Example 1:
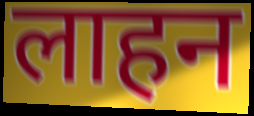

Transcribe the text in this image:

लाहन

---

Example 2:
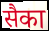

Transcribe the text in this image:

सैका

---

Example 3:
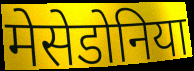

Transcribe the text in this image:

मेसेडोनिया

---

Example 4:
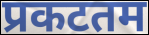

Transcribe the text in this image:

प्रकटतम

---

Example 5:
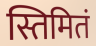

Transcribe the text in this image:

स्तिमितं